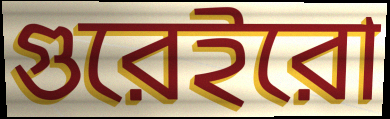
গুরেইরো